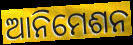
ଆନିମେଶନ